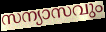
സന്യാസവും